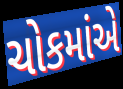
ચોકમાંએ